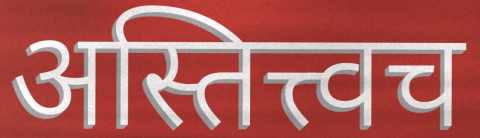
अस्तित्त्वच